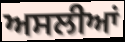
ਅਸਲੀਆਂ